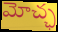
మోచ్ఛ